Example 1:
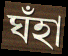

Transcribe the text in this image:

ঘঁহা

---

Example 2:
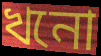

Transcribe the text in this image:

খনো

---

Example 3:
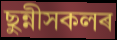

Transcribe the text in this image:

ছুন্নীসকলৰ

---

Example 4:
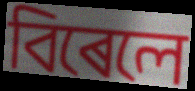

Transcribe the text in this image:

বিৰেলে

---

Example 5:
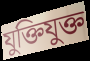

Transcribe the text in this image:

যুক্তিযুক্ত